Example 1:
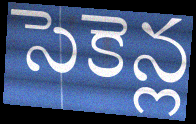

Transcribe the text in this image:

సెకెన్ల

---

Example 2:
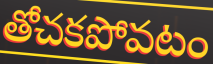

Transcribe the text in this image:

తోచకపోవటం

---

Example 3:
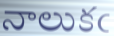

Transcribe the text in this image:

నాలుకఁ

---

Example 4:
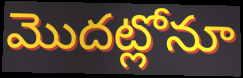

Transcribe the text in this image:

మొదట్లోనూ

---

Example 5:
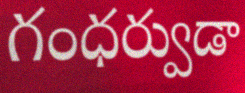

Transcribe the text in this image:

గంధర్వుడా